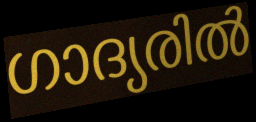
ഗാദ്യരിൽ